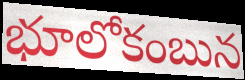
భూలోకంబున